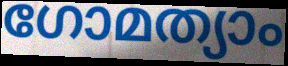
ഗോമത്യാം